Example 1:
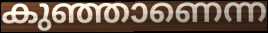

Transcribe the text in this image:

കുഞ്ഞാണെന്ന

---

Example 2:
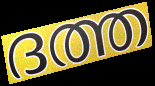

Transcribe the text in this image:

ദത്ത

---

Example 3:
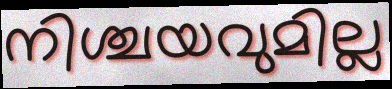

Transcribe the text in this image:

നിശ്ചയവുമില്ല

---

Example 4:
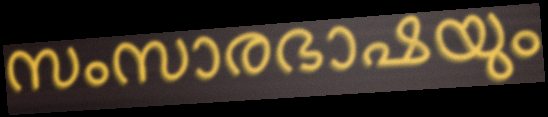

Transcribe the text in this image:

സംസാരഭാഷയും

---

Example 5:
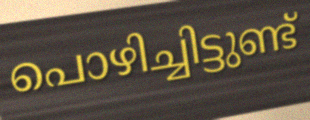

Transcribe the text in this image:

പൊഴിച്ചിട്ടുണ്ട്